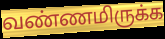
வண்ணமிருக்க